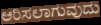
ಆರಿಸಲಾಗುವುದು